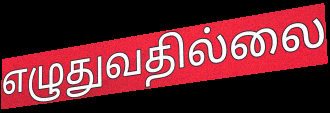
எழுதுவதில்லை